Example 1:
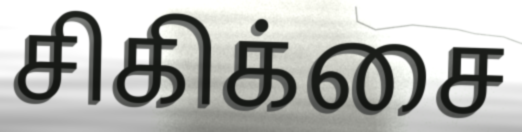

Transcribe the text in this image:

சிகிக்சை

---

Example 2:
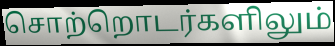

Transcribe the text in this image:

சொற்றொடர்களிலும்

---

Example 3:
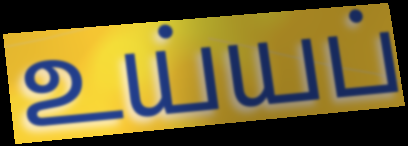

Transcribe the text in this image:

உய்யப்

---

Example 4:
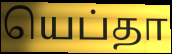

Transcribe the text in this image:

யெப்தா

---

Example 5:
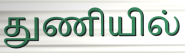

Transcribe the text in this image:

துணியில்